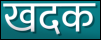
खदक